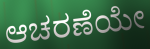
ಆಚರಣೆಯೇ